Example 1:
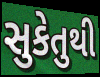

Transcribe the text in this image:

સુકેતુથી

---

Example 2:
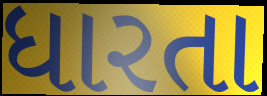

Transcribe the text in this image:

ધારતા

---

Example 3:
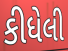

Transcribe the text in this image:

કીધેલી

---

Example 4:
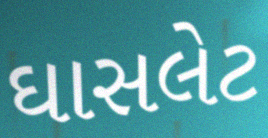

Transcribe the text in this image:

ઘાસલેટ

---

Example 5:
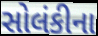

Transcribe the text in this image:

સોલંકીના